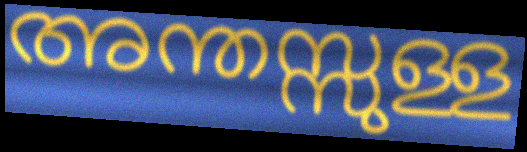
അന്തസ്സുള്ള